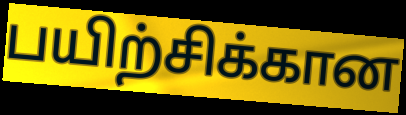
பயிற்சிக்கான